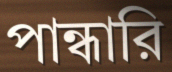
পান্ধারি